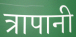
त्रापानी